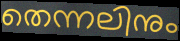
തെന്നലിനും